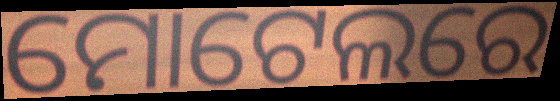
ମୋଟେଲରେ